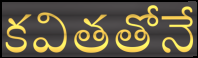
కవితతోనే